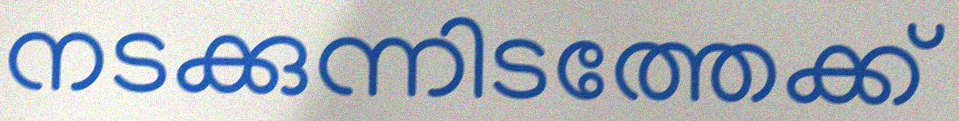
നടക്കുന്നിടത്തേക്ക്